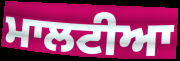
ਮਾਲਟੀਆ